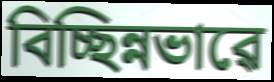
বিচ্ছিন্নভাৱে